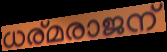
ധര്മരാജന്